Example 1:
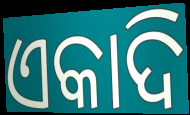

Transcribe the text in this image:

ଏକାଦି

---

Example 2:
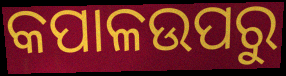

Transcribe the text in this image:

କପାଳଉପରୁ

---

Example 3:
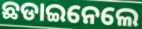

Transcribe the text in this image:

ଛଡାଇନେଲେ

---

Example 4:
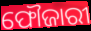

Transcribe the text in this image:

ଫୌଜାରୀ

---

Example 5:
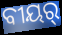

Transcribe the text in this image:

ବୀୟର୍